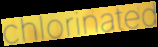
chlorinated